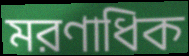
মরণাধিক